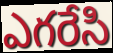
ఎగరేసి